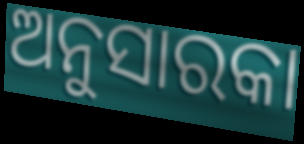
ଅନୁସାରକା